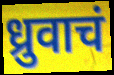
ध्रुवाचं